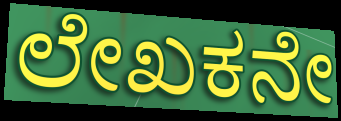
ಲೇಖಕನೇ